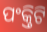
ପଂକ୍ତିଟି